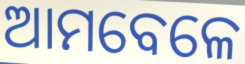
ଆମବେଳେ